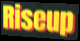
Riseup